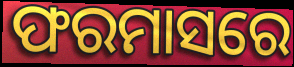
ଫରମାସରେ